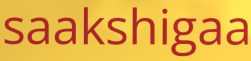
saakshigaa